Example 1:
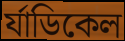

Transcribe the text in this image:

র্যাডিকেল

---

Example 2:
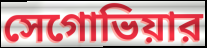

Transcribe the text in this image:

সেগোভিয়ার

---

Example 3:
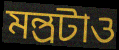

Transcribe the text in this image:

মন্ত্রটাও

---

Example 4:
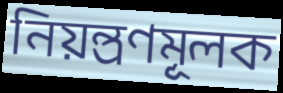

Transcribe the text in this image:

নিয়ন্ত্রণমূলক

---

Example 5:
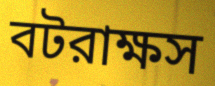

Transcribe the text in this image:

বটরাক্ষস